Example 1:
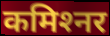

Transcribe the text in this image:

कमिश्‍नर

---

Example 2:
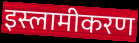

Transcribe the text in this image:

इस्लामीकरण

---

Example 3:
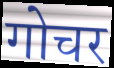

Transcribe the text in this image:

गोचर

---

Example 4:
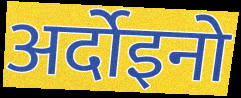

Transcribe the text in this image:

अर्दोइनो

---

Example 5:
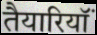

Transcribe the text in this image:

तैयारियॉं